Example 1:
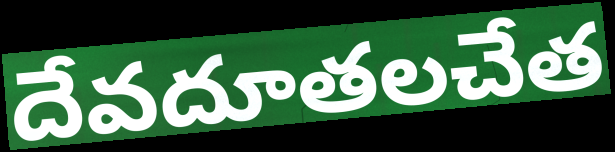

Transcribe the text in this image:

దేవదూతలచేత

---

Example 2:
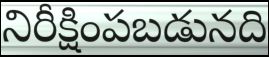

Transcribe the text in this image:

నిరీక్షింపబడునది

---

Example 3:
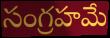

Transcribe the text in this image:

సంగ్రహమే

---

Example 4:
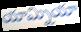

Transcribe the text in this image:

యామ్నియా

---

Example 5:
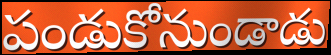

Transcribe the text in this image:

పండుకోనుండాడు